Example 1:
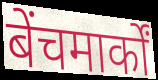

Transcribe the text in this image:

बेंचमार्कों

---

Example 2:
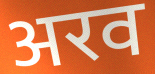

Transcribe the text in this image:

अरव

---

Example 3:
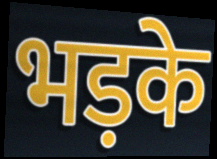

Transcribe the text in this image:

भड़के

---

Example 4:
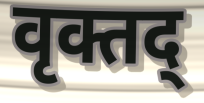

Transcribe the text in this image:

वृक्तद्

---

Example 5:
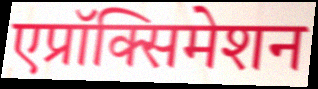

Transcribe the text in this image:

एप्रॉक्सिमेशन